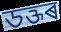
ডক্তৰ